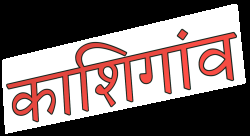
काशिगांव